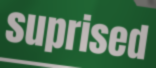
suprised